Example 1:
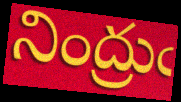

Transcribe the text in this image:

నింద్రుఁ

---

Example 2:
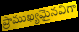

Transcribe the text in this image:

ప్రాముఖ్యమైనవిగా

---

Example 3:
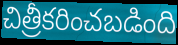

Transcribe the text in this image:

చిత్రీకరించబడింది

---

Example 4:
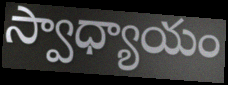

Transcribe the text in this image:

స్వాధ్యాయం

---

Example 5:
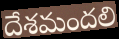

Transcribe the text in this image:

దేశమందలి